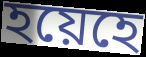
হয়েহে